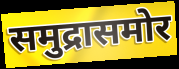
समुद्रासमोर